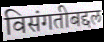
विसंगतीबद्दल